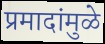
प्रमादांमुळे